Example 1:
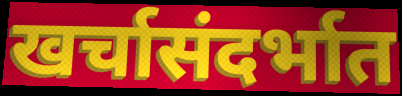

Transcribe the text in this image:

खर्चासंदर्भात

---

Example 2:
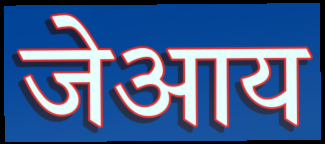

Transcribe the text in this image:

जेआय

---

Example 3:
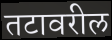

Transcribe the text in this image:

तटावरील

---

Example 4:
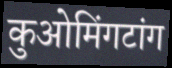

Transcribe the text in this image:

कुओमिंगटांग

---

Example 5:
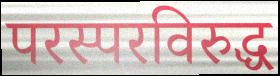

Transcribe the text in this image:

परस्परविरुद्ध